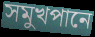
সমুখপানে